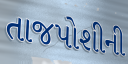
તાજપોશીની